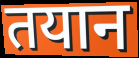
तयान